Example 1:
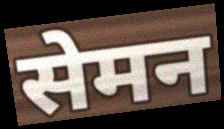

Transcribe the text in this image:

सेमन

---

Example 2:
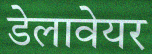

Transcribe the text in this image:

डेलावेयर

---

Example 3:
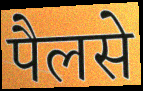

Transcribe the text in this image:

पैलसे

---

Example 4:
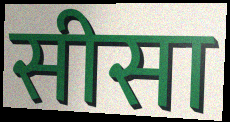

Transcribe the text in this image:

सीसा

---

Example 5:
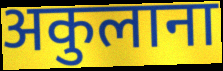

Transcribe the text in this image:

अकुलाना